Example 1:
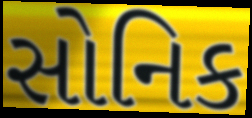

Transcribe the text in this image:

સોનિક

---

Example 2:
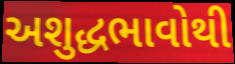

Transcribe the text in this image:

અશુદ્ધભાવોથી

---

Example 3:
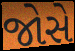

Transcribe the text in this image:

જોસે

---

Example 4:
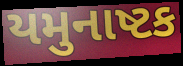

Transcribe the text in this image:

યમુનાષ્ટક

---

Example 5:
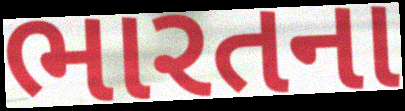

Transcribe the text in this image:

ભારતના